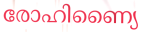
രോഹിണ്യൈ